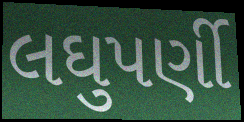
લઘુપર્ણી